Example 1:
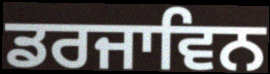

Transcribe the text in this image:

ਡਰਜਾਵਿਨ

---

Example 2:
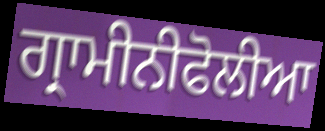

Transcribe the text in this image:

ਗ੍ਰਾਮੀਨੀਫੋਲੀਆ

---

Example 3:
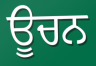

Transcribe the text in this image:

ਊਚਨ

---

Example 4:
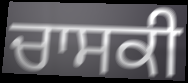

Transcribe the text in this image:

ਚਾਸਕੀ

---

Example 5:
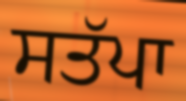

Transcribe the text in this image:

ਸਤੱਪਾ